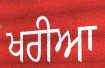
ਖਰੀਆ